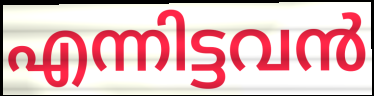
എന്നിട്ടവൻ